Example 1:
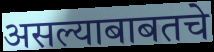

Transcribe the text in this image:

असल्याबाबतचे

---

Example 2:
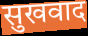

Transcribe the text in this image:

सुखवाद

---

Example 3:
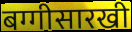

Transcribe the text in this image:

बग्गीसारखी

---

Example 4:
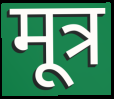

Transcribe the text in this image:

मूत्र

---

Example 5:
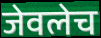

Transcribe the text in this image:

जेवलेच